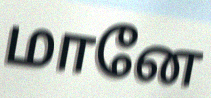
மானே